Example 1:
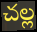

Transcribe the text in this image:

చల్ల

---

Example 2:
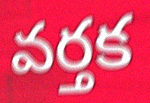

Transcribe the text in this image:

వర్తక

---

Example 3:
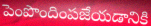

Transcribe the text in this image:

పెంపొందింపజేయడానికి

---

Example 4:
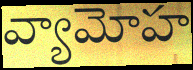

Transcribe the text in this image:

వ్యామోహ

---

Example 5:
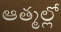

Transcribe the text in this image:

ఆత్మల్లో